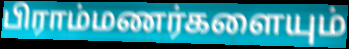
பிராம்மணர்களையும்